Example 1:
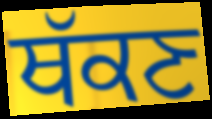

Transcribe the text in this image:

ਥੱਕਣ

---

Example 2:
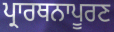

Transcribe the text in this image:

ਪ੍ਰਾਰਥਨਾਪੂਰਣ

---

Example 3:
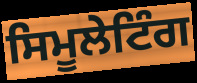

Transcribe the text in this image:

ਸਿਮੂਲੇਟਿੰਗ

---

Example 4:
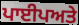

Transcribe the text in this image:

ਪਾਈਪਅਤੇ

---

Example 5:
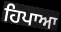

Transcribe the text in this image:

ਹਿਪਾਆ